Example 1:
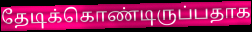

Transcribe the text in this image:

தேடிக்கொண்டிருப்பதாக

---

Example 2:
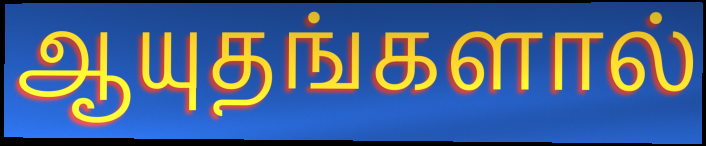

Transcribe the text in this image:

ஆயுதங்களால்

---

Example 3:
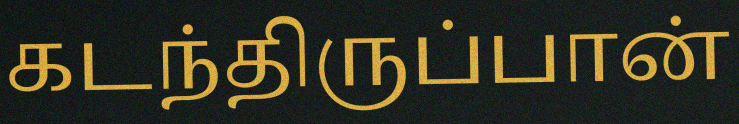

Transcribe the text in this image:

கடந்திருப்பான்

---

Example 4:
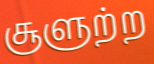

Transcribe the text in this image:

சூளுற்ற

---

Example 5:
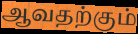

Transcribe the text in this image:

ஆவதற்கும்